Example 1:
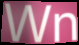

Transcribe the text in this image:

Wn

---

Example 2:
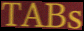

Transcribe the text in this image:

TABs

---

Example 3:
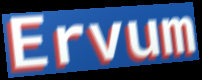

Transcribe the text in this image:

Ervum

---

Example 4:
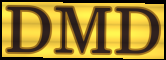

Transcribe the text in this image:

DMD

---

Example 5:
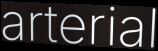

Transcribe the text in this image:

arterial